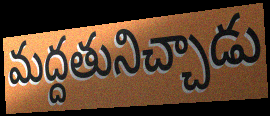
మద్దతునిచ్చాడు